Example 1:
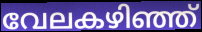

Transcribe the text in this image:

വേലകഴിഞ്ഞ്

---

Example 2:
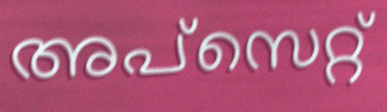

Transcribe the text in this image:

അപ്സെറ്റ്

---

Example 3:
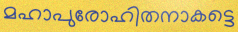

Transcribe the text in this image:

മഹാപുരോഹിതനാകട്ടെ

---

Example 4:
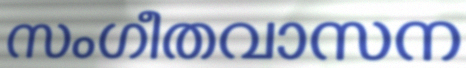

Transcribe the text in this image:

സംഗീതവാസന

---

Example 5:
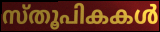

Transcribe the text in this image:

സ്തൂപികകൾ